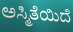
ಅಸ್ಮಿತೆಯಿದೆ